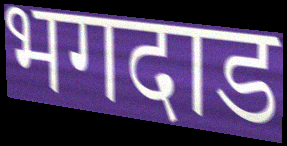
भगदाड